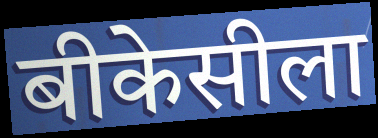
बीकेसीला